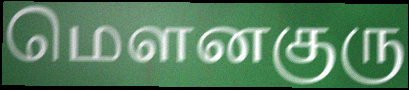
மௌனகுரு